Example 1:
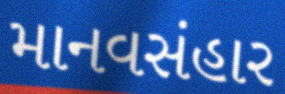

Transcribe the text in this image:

માનવસંહાર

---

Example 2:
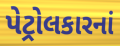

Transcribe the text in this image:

પેટ્રોલકારનાં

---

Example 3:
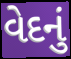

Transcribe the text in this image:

વેદનું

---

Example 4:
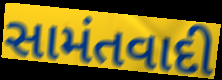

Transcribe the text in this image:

સામંતવાદી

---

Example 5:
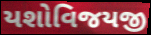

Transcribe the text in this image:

યશોવિજયજી